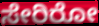
ಸೇರಿರೋ